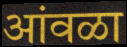
आंवळा